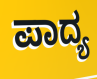
ಪಾದ್ಯ